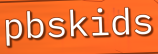
pbskids